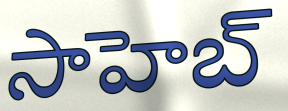
సాహెబ్